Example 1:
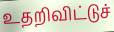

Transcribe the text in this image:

உதறிவிட்டுச்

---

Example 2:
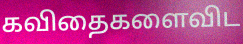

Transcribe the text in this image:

கவிதைகளைவிட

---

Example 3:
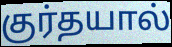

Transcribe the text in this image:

குர்தயால்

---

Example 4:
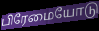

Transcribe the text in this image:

பிரேமையோடு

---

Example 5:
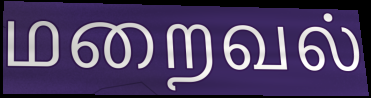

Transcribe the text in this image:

மறைவல்